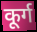
कूर्ग